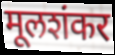
मूलशंकर